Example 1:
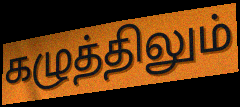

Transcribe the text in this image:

கழுத்திலும்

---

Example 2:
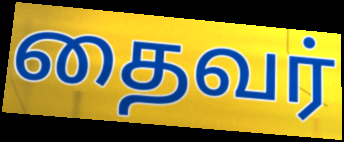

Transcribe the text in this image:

தைவர்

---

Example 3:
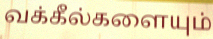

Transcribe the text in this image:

வக்கீல்களையும்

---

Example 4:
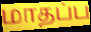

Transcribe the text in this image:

மாதப்ப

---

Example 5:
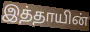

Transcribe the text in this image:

இத்தாயின்